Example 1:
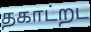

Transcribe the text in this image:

தகாட்றட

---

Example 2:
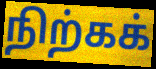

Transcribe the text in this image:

நிற்கக்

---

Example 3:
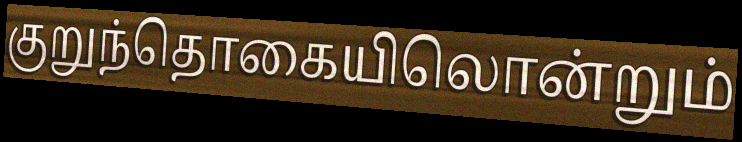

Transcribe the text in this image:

குறுந்தொகையிலொன்றும்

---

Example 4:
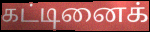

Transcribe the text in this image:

கட்டினைக்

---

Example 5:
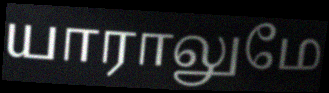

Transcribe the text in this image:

யாராலுமே